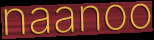
naanoo